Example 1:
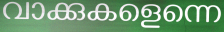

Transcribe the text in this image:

വാക്കുകളെന്നെ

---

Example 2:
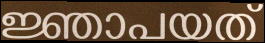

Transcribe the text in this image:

ജ്ഞാപയത്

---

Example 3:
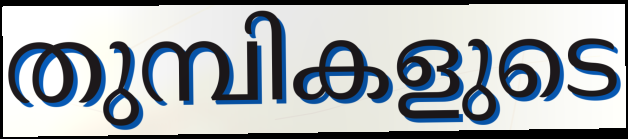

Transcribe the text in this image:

തുമ്പികളുടെ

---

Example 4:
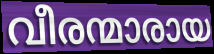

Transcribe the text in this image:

വീരന്മാരായ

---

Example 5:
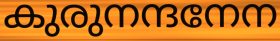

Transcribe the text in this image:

കുരുനന്ദനേന